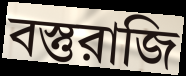
বস্তুরাজি